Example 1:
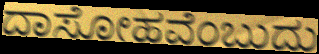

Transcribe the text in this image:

ದಾಸೋಹವೆಂಬುದು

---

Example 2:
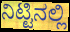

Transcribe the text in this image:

ನಿಟ್ಟಿನಲ್ಲಿ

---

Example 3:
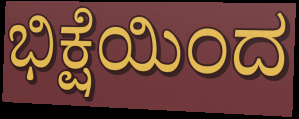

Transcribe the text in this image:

ಭಿಕ್ಷೆಯಿಂದ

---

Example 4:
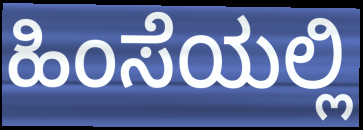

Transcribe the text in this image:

ಹಿಂಸೆಯಲ್ಲಿ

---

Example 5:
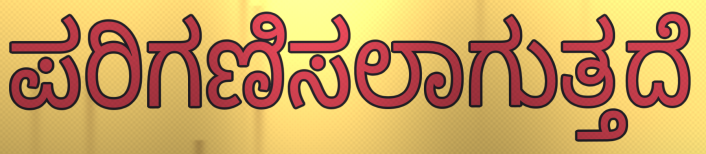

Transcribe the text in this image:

ಪರಿಗಣಿಸಲಾಗುತ್ತದೆ